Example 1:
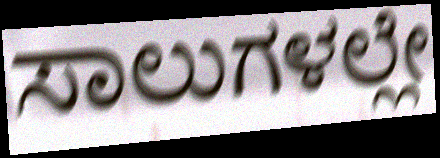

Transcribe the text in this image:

ಸಾಲುಗಳಲ್ಲೇ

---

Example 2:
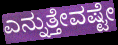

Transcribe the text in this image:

ಎನ್ನುತ್ತೇವಷ್ಟೇ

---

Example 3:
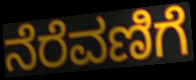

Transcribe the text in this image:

ನೆರೆವಣಿಗೆ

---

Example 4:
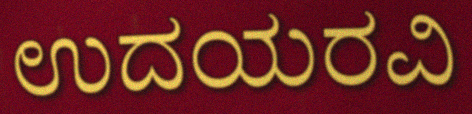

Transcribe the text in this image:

ಉದಯರವಿ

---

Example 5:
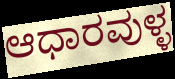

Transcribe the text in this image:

ಆಧಾರವುಳ್ಳ